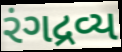
રંગદ્રવ્ય